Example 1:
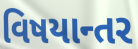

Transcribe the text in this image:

વિષયાન્તર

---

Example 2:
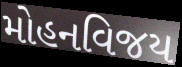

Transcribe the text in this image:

મોહનવિજય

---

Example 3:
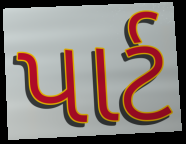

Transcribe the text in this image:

પાર્ટ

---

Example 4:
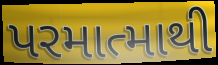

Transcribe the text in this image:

પરમાત્માથી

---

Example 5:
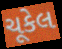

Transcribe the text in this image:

ચૂકેલ